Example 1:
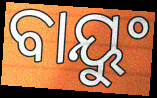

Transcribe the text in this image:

ବାୟୁଂ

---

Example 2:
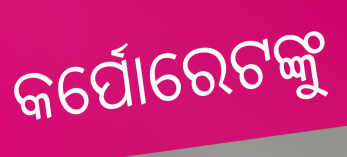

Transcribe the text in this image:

କର୍ପୋରେଟଙ୍କୁ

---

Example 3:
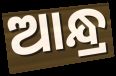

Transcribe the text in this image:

ଆନ୍ଧ୍ର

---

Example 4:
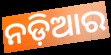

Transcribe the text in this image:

ନଡ଼ିଆର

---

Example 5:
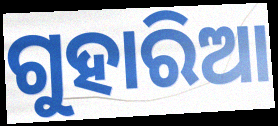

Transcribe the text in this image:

ଗୁହାରିଆ